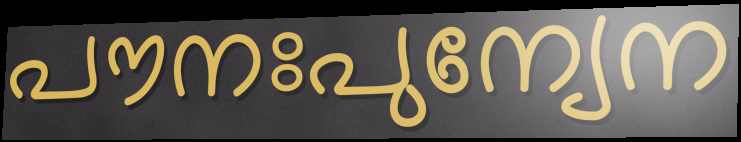
പൗനഃപുന്യേന